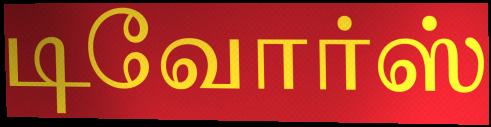
டிவோர்ஸ்